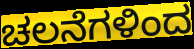
ಚಲನೆಗಳಿಂದ